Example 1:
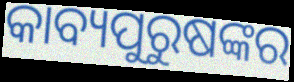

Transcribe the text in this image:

କାବ୍ୟପୁରୁଷଙ୍କର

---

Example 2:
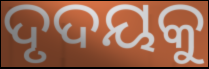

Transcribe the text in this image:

ଦୃଦୟକୁ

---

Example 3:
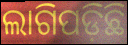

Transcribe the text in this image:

ଲାଗିପଡ଼ିଛି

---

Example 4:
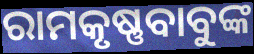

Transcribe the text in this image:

ରାମକୃଷ୍ଣବାବୁଙ୍କ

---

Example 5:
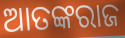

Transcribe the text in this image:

ଆତଙ୍କରାଜ